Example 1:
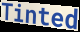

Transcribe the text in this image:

Tinted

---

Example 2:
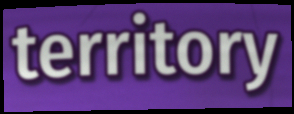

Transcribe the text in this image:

territory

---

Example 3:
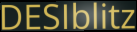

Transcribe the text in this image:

DESIblitz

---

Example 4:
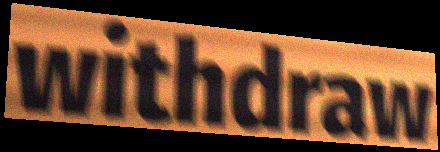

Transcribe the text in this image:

withdraw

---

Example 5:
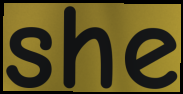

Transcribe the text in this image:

she